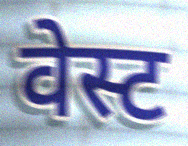
वेस्ट